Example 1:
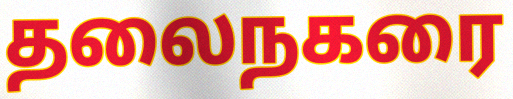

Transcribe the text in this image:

தலைநகரை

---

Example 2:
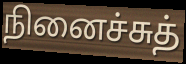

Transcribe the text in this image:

நினைச்சுத்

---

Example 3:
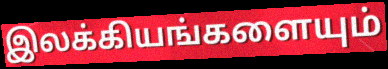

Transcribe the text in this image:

இலக்கியங்களையும்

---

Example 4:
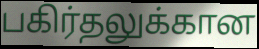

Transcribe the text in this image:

பகிர்தலுக்கான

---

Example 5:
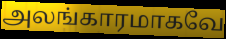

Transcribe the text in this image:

அலங்காரமாகவே